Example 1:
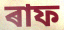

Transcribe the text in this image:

ৰাফ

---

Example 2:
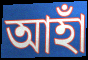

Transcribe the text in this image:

আহাঁ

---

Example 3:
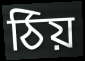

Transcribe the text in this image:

ঠিয়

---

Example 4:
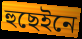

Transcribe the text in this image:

হুছেইনে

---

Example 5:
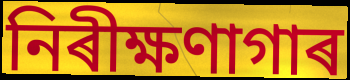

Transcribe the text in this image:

নিৰীক্ষণাগাৰ